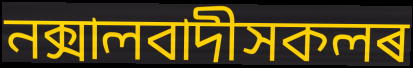
নক্সালবাদীসকলৰ